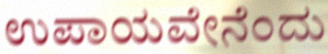
ಉಪಾಯವೇನೆಂದು